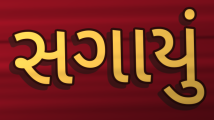
સગાયું